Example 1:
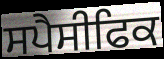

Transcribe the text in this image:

ਸਪੈਸੀਫਿਕ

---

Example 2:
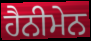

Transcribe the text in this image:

ਹੈਨੀਮੇਨ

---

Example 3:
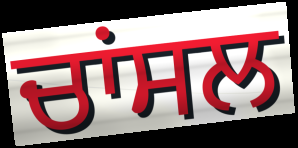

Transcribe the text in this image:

ਚਾਂਸਲ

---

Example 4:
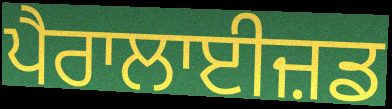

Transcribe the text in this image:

ਪੈਰਾਲਾਈਜ਼ਡ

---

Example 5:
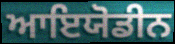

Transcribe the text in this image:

ਆਇਯੋਡੀਨ